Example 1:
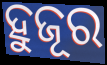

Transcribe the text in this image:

ହୁଜୂର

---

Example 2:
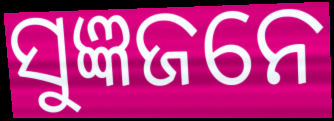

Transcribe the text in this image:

ସୁଜ୍ଞଜନେ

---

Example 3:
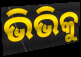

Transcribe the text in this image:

ଭିଭିକୁ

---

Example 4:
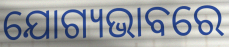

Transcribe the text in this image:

ଯୋଗ୍ୟଭାବରେ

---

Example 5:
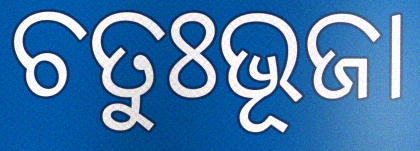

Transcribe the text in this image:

ଚତୁଃଭୂଜା